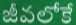
జీవలోకే